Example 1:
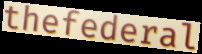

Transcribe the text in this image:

thefederal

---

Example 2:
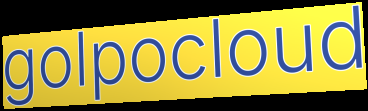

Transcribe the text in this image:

golpocloud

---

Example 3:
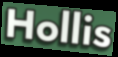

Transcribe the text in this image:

Hollis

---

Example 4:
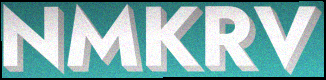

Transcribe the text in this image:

NMKRV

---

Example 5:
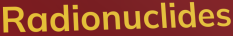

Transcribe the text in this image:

Radionuclides